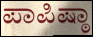
ಪಾಪಿಷ್ಠಾ